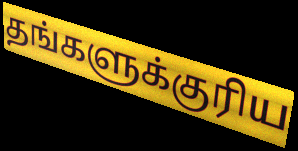
தங்களுக்குரிய